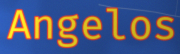
Angelos